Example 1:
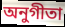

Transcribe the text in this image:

অনুগীতা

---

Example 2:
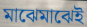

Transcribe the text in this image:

মাঝেমাঝেই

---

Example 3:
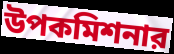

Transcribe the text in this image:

উপকমিশনার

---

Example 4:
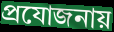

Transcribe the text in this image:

প্রযোজনায়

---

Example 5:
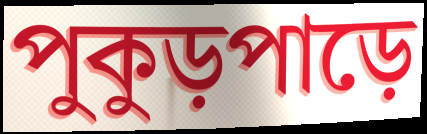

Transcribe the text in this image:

পুকুড়পাড়ে